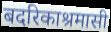
बदरिकाश्रमासी